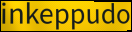
inkeppudo